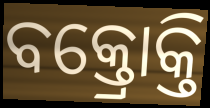
ବକ୍ତ୍ରୋକ୍ତି